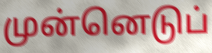
முன்னெடுப்